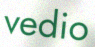
vedio